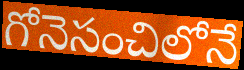
గోనెసంచిలోనే